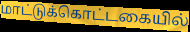
மாட்டுக்கொட்டகையில்